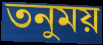
তনুময়